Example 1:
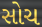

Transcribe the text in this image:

સોચ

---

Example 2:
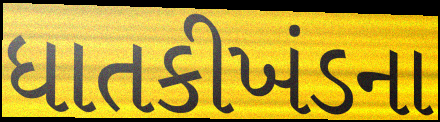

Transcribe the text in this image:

ધાતકીખંડના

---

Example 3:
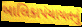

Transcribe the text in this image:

બાલિકાપંચાયતનું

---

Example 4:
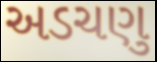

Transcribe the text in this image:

અડચણુ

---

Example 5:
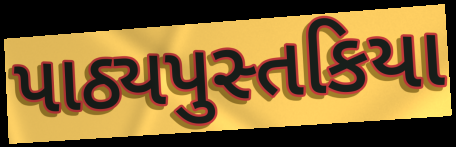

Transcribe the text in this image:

પાઠ્યપુસ્તકિયા